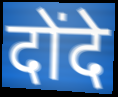
दोंदे